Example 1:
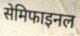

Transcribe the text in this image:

सेमिफाइनल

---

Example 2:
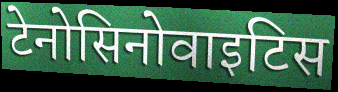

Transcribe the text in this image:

टेनोसिनोवाइटिस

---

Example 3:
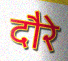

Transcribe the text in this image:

दौरे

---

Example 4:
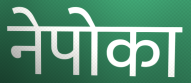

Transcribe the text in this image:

नेपोका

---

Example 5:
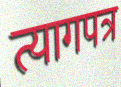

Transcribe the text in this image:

त्यागपत्र